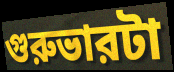
গুরুভারটা